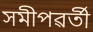
সমীপৱৰ্তী